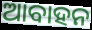
ଆବାହନ